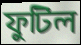
ফুটিল